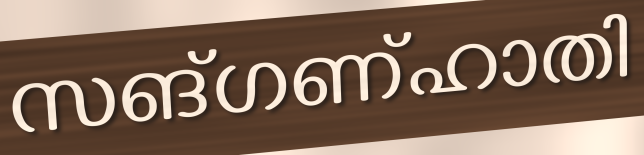
സങ്ഗണ്ഹാതി